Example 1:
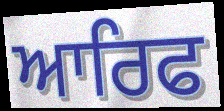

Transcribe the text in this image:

ਆਰਿਫ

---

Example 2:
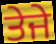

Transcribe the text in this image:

ਤੇਜੇ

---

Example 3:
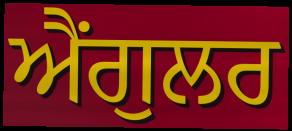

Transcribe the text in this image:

ਐਂਗੁਲਰ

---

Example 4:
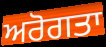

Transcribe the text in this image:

ਅਰੋਗਤਾ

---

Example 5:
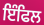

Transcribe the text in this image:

ਇੰਫਿਲ